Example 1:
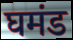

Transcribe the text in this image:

घमंड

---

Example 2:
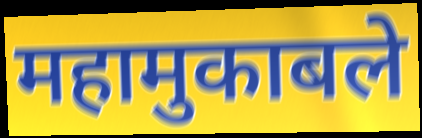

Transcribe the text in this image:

महामुकाबले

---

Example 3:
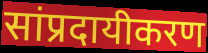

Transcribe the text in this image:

सांप्रदायीकरण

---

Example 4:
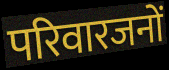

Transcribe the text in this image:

परिवारजनों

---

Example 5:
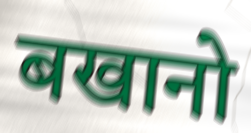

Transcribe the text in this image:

बखानो